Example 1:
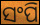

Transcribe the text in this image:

ସଂପି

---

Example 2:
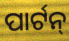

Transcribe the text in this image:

ପାର୍ଟନ୍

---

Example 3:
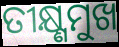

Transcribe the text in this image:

ତୀକ୍ଷ୍ଣମୁଖ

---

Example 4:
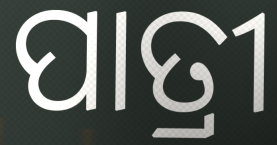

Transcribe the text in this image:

ପାତ୍ରୀ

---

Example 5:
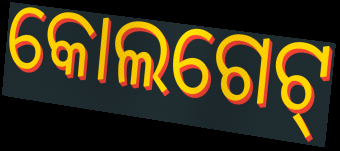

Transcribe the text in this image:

କୋଲଗେଟ୍